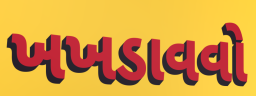
ખખડાવવો